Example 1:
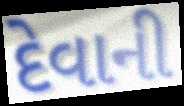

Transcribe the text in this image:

દેવાની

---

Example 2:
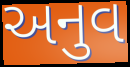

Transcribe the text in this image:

અનુવ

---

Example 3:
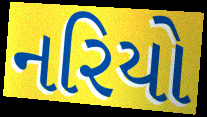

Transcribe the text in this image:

નરિયો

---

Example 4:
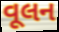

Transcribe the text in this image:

વૂલન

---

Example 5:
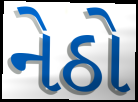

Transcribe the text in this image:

નેઠો